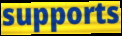
supports